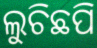
ଲୁଚିଛପି